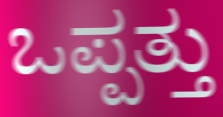
ಒಪ್ಪತ್ತು